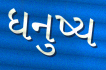
ધનુષ્ય